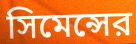
সিমেন্সের